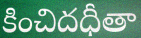
కించిదధీతా